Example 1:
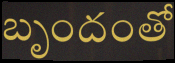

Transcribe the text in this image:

బృందంతో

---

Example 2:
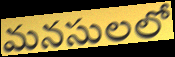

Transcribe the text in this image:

మనసులలో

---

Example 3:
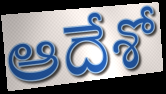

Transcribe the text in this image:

ఆదేశో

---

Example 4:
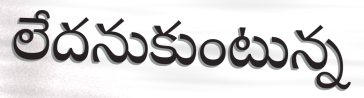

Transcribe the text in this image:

లేదనుకుంటున్న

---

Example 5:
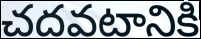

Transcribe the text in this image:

చదవటానికి